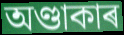
অণ্ডাকাৰ